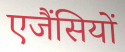
एजैंसियों